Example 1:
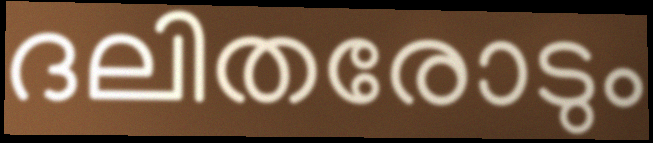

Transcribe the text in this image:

ദലിതരോടും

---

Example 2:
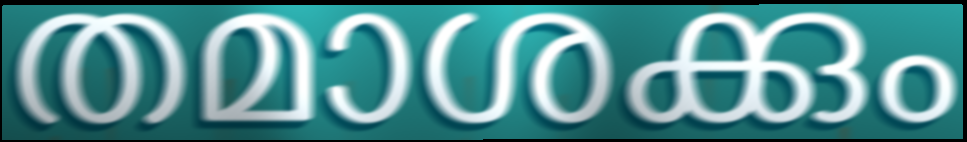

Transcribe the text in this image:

തമാശക്കും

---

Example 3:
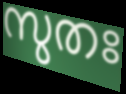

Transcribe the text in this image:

സുതഃ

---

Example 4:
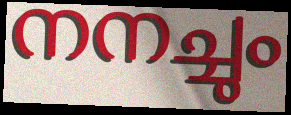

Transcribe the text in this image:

നനച്ചും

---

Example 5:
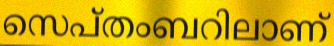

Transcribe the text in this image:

സെപ്തംബറിലാണ്